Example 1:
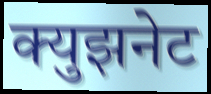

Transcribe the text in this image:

क्युझनेट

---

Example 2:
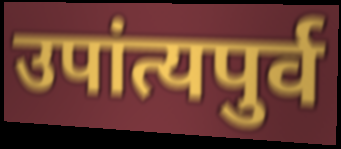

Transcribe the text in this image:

उपांत्यपुर्व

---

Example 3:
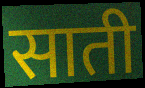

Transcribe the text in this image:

साती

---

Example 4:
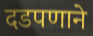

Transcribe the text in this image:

दडपणाने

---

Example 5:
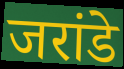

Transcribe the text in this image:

जरांडे